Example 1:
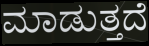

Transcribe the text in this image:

ಮಾಡುತ್ತದೆ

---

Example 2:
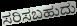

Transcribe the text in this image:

ಸರಿಸಬಹುದು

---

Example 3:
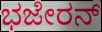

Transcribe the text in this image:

ಭಜೇರನ್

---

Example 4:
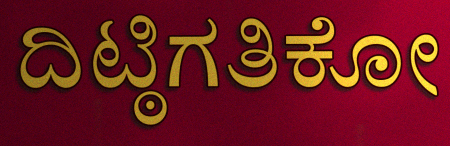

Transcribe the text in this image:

ದಿಟ್ಠಿಗತಿಕೋ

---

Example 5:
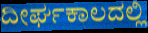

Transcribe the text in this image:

ದೀರ್ಘಕಾಲದಲ್ಲಿ